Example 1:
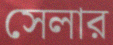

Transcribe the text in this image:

সেলার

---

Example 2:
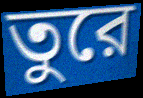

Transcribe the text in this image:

তুরে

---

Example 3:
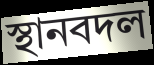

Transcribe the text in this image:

স্থানবদল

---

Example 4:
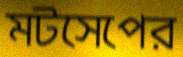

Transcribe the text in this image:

মটসেপের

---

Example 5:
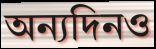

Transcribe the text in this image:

অন্যদিনও